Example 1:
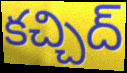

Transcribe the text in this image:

కచ్చిద్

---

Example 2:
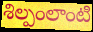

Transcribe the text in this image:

శిల్పంలాంటి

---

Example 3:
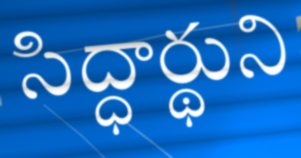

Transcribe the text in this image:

సిద్ధార్థుని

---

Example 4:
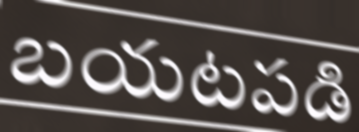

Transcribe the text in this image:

బయటపడి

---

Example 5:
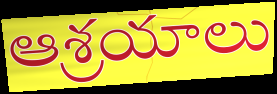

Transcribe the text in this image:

ఆశ్రయాలు